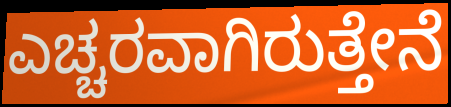
ಎಚ್ಚರವಾಗಿರುತ್ತೇನೆ